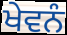
ਖੇਵਨੰ